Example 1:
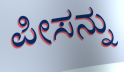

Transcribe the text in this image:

ಪೀಸನ್ನು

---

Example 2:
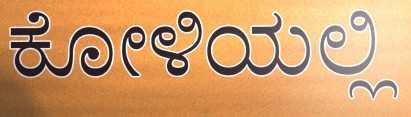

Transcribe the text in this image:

ಕೋಳಿಯಲ್ಲಿ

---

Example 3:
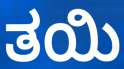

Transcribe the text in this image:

ತಯಿ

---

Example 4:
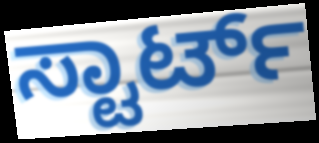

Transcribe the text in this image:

ಸ್ಟಾರ್ಟ್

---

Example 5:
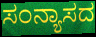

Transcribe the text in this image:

ಸಂನ್ಯಾಸದ